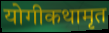
योगीकथामृत